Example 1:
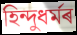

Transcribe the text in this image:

হিন্দুধৰ্মৰ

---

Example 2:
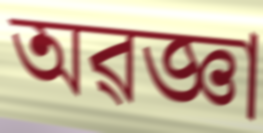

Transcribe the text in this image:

অৱজ্ঞা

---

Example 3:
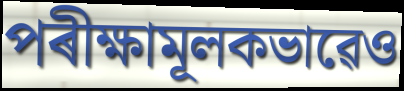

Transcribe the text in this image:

পৰীক্ষামূলকভাৱেও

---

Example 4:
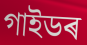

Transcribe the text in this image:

গাইডৰ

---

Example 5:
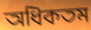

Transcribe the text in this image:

অধিকতম